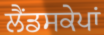
ਲੈਂਡਸਕੇਪਾਂ